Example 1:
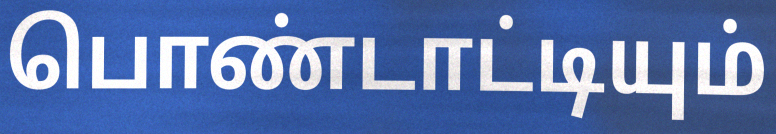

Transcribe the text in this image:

பொண்டாட்டியும்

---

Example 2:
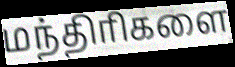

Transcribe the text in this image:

மந்திரிகளை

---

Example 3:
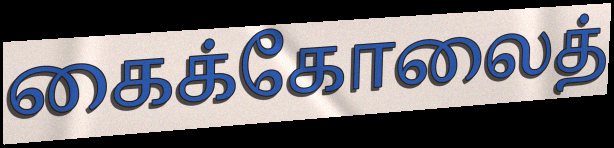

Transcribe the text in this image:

கைக்கோலைத்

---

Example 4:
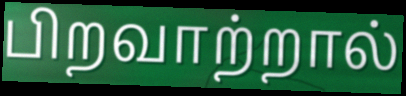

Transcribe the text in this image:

பிறவாற்றால்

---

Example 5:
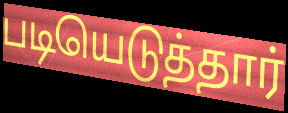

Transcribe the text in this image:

படியெடுத்தார்